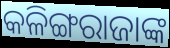
କଳିଙ୍ଗରାଜାଙ୍କ